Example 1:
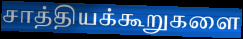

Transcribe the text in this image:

சாத்தியக்கூறுகளை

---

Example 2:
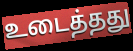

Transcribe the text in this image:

உடைத்தது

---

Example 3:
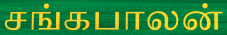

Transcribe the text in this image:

சங்கபாலன்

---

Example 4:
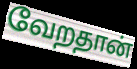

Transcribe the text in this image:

வேறதான்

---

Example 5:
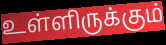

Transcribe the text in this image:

உள்ளிருக்கும்